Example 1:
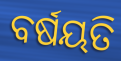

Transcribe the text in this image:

ବର୍ଷୟତି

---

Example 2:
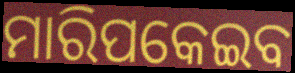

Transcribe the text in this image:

ମାରିପକେଇବ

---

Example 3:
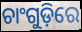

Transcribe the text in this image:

ଚାଂଗୁଡ଼ିରେ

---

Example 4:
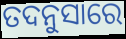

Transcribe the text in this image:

ତଦନୁସାରେ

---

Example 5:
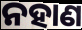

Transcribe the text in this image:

ନହାଣ